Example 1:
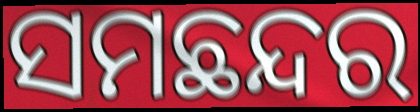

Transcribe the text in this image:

ସମଛନ୍ଦର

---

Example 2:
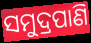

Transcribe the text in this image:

ସମୁଦ୍ରପାଣି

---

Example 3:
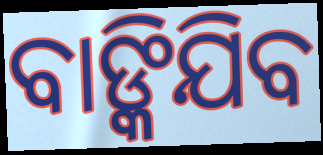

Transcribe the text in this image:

ବାଙ୍କିଯିବ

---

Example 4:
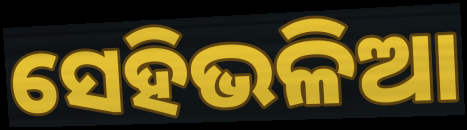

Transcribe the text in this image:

ସେହିଭଳିଆ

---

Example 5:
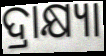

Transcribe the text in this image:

ଦ୍ରାକ୍ଷ୍ୟା